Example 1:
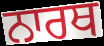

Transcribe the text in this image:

ਨਾਰਥ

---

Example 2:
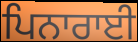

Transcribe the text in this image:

ਪਿਨਾਰਾਈ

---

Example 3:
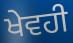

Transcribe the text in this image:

ਖੇਵਹੀ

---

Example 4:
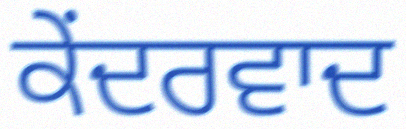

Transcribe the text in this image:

ਕੇਂਦਰਵਾਦ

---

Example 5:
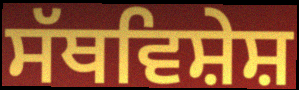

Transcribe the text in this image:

ਸੱਥਵਿਸ਼ੇਸ਼